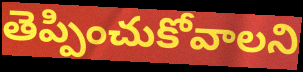
తెప్పించుకోవాలని